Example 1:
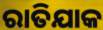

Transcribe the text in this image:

ରାତିଯାକ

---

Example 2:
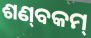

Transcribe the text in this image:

ଶଣ୍‌ବକମ୍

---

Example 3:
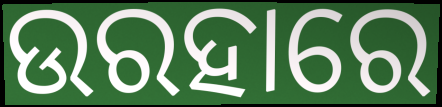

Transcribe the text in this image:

ଉରହାରେ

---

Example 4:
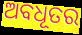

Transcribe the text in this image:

ଅବଧୂତର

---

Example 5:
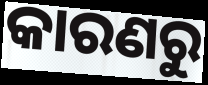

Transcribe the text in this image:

କାରଣରୁ